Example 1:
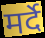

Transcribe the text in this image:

मर्दे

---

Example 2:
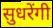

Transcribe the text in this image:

सुधरेंगी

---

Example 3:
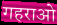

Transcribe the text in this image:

गहराओ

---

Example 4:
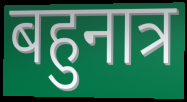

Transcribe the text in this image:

बहुनात्र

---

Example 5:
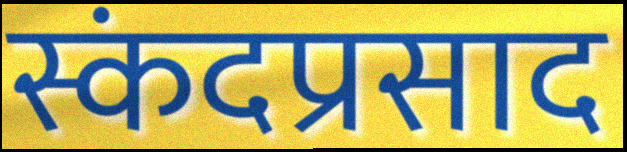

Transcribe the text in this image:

स्कंदप्रसाद